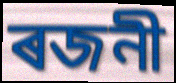
ৰজনী